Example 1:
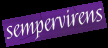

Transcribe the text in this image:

sempervirens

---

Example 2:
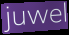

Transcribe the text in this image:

juwel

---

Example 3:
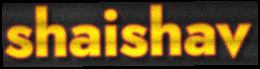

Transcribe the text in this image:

shaishav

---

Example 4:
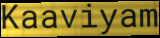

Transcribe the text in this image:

Kaaviyam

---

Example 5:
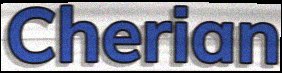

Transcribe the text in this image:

Cherian